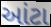
આંટા